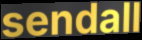
sendall